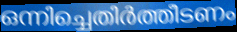
ഒന്നിച്ചെതിർത്തീടണം